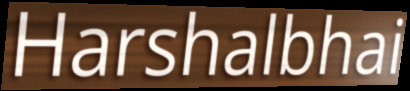
Harshalbhai